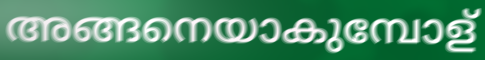
അങ്ങനെയാകുമ്പോള്